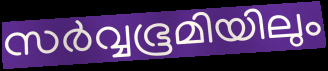
സർവ്വഭൂമിയിലും